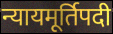
न्यायमूर्तिपदी